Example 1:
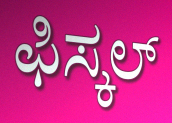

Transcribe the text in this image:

ಫಿಸ್ಕಲ್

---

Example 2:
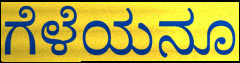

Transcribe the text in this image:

ಗೆಳೆಯನೂ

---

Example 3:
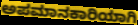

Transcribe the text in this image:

ಅಪಮಾನಕಾರಿಯಾಗಿ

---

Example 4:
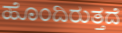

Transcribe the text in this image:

ಹೊಂದಿರುತ್ತದೆ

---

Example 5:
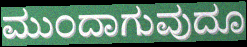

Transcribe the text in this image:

ಮುಂದಾಗುವುದೂ